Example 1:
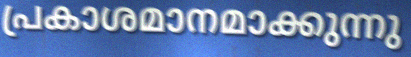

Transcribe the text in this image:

പ്രകാശമാനമാക്കുന്നു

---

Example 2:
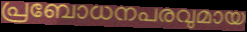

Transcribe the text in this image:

പ്രബോധനപരവുമായ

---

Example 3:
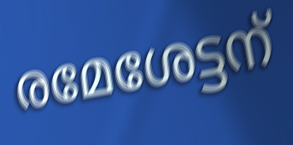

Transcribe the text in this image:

രമേശേട്ടന്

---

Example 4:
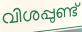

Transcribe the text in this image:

വിശപ്പുണ്ട്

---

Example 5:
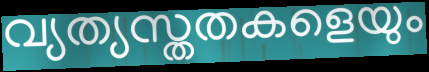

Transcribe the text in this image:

വ്യത്യസ്തതകളെയും